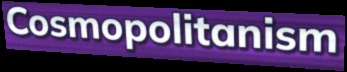
Cosmopolitanism